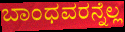
ಬಾಂಧವರನ್ನೆಲ್ಲ